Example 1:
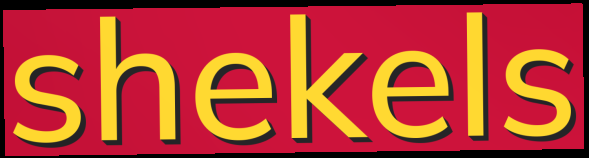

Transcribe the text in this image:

shekels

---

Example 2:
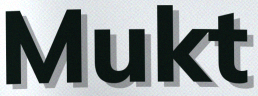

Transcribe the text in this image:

Mukt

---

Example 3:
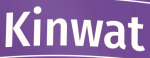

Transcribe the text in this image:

Kinwat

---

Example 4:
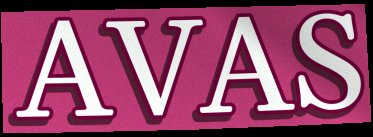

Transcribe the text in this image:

AVAS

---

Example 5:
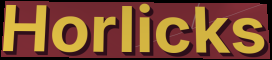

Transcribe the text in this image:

Horlicks